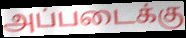
அப்படைக்கு